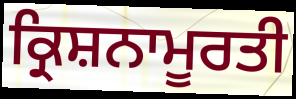
ਕ੍ਰਿਸ਼ਨਾਮੂਰਤੀ